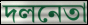
দলনেতা